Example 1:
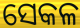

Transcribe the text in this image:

ସେକଳ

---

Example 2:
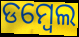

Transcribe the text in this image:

ଡମ୍ୱେଲ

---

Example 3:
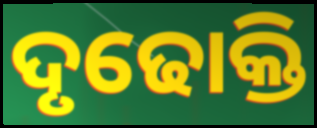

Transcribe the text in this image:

ଦୃଢୋକ୍ତି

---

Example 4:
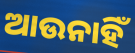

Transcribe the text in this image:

ଆଉନାହିଁ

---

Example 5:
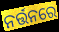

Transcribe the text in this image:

ନର୍ତ୍ତନରେ